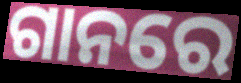
ଗାନରେ